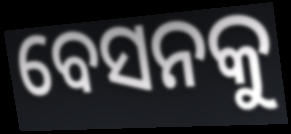
ବେସନକୁ